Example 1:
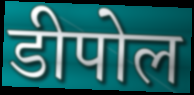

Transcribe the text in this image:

डीपोल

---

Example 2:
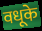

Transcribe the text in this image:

वधूके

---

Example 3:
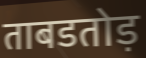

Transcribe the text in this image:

ताबडतोड़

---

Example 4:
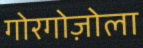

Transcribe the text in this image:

गोरगोज़ोला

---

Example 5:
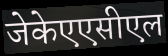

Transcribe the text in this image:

जेकेएएसीएल